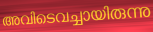
അവിടെവച്ചായിരുന്നു